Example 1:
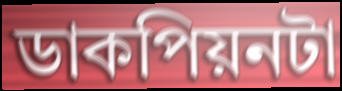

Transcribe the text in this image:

ডাকপিয়নটা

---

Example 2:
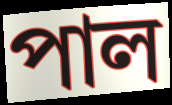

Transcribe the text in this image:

পাল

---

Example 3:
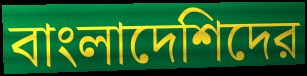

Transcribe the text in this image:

বাংলাদেশিদের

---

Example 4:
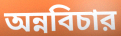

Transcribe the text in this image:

অন্নবিচার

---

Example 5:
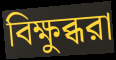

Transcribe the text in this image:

বিক্ষুব্ধরা